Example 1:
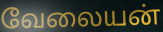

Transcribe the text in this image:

வேலையன்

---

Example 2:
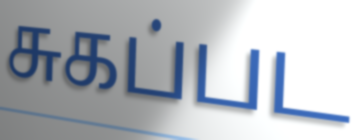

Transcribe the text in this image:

சுகப்பட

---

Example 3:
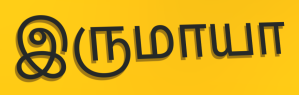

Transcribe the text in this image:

இருமாயா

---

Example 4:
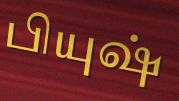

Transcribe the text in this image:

பியுஷ்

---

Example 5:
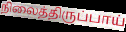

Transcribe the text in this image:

நிலைத்திருப்பாய்